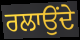
ਰਲਾਉਂਦੇ